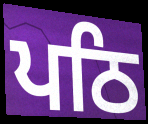
ਪਠਿ